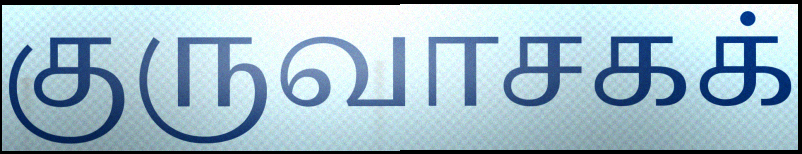
குருவாசகக்